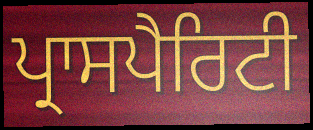
ਪ੍ਰਾਸਪੈਰਿਟੀ